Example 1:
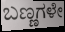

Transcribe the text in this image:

ಬಣ್ಣಗಳೇ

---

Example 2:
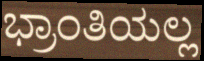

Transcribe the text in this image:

ಭ್ರಾಂತಿಯಲ್ಲ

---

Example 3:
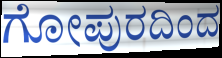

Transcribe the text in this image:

ಗೋಪುರದಿಂದ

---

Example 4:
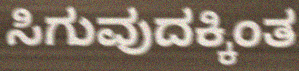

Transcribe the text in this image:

ಸಿಗುವುದಕ್ಕಿಂತ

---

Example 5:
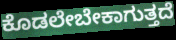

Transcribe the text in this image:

ಕೊಡಲೇಬೇಕಾಗುತ್ತದೆ